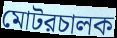
মোটরচালক